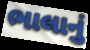
ભાલાનું